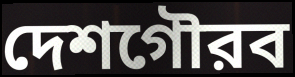
দেশগৌরব